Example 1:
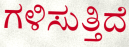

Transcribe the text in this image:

ಗಳಿಸುತ್ತಿದೆ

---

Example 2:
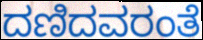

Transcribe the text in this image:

ದಣಿದವರಂತೆ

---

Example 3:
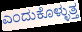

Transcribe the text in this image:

ಎಂದುಕೊಳ್ಳುತ್ತ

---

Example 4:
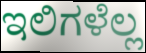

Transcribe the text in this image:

ಇಲಿಗಳೆಲ್ಲ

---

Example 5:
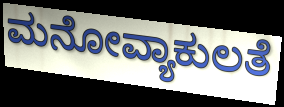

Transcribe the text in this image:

ಮನೋವ್ಯಾಕುಲತೆ